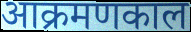
आक्रमणकाल